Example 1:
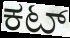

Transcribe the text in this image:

ಕಟ್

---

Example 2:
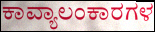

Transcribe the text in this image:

ಕಾವ್ಯಾಲಂಕಾರಗಳ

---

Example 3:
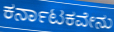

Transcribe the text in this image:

ಕರ್ನಾಟಕವೇನು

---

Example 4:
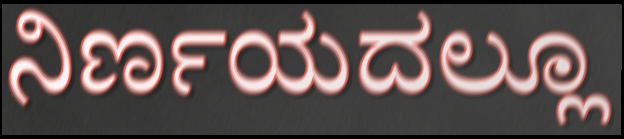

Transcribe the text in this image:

ನಿರ್ಣಯದಲ್ಲೂ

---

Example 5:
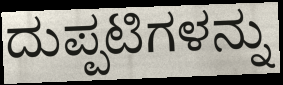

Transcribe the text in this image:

ದುಪ್ಪಟಿಗಳನ್ನು